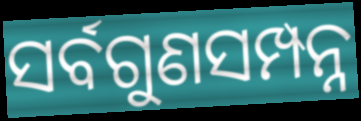
ସର୍ବଗୁଣସମ୍ପନ୍ନ